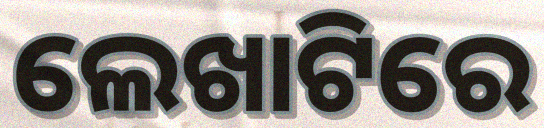
ଲେଖାଟିରେ